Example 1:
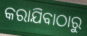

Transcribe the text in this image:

କରାଯିବାଠାରୁ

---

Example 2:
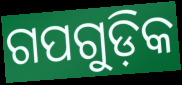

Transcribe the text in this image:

ଗପଗୁଡ଼ିକ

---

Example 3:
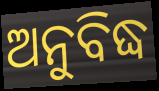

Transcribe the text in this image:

ଅନୁବିଦ୍ଧ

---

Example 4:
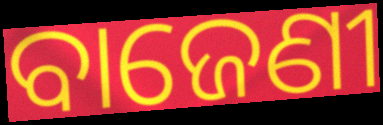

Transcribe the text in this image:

ବାଜେଣୀ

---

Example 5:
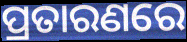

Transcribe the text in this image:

ପ୍ରତାରଣରେ